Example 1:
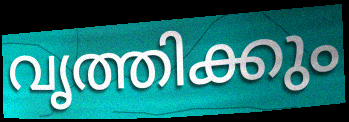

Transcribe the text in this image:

വൃത്തിക്കും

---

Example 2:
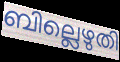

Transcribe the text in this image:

ബില്ലെഴുതി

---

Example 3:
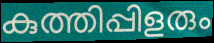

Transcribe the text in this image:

കുത്തിപ്പിളരും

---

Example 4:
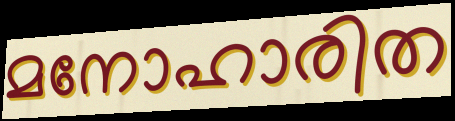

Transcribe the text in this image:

മനോഹാരിത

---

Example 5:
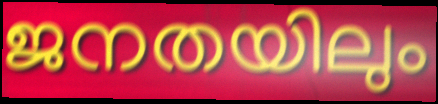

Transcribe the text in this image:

ജനതയിലും